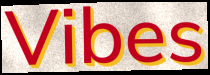
Vibes